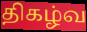
திகழ்வ